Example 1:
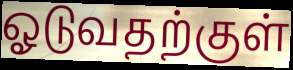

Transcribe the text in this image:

ஓடுவதற்குள்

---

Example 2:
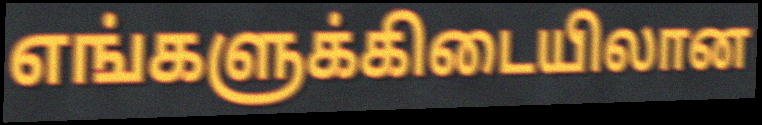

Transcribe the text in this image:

எங்களுக்கிடையிலான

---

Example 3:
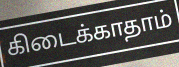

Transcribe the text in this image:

கிடைக்காதாம்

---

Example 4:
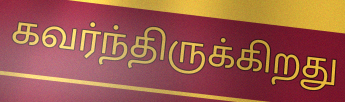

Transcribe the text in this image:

கவர்ந்திருக்கிறது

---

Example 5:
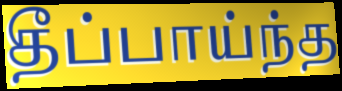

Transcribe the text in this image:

தீப்பாய்ந்த